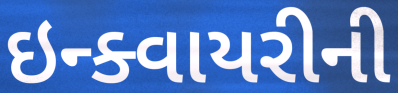
ઇન્ક્વાયરીની